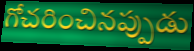
గోచరించినప్పుడు